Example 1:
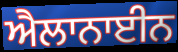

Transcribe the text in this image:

ਐਲਾਨਾਈਨ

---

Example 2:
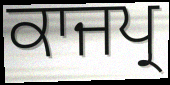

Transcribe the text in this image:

ਕਾਜਪ੍ਰ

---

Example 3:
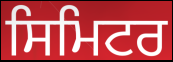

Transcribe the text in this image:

ਸਿਮਿਟਰ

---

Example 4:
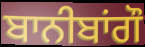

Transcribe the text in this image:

ਬਾਨੀਬਾਂਗੌ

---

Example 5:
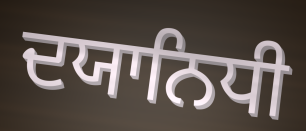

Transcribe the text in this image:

ਦਯਾਨਿਧੀ